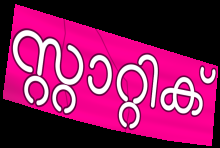
സ്റ്റാറ്റിക്